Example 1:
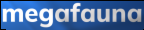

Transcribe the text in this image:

megafauna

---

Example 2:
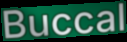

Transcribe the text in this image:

Buccal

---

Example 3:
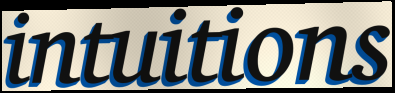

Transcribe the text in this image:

intuitions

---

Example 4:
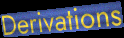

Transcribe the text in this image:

Derivations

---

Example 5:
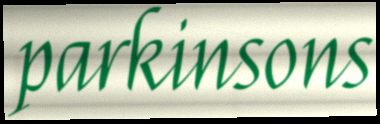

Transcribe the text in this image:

parkinsons